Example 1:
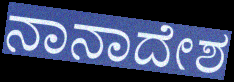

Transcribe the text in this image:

ನಾನಾದೇಶ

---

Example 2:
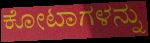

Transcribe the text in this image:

ಕೋಟಾಗಳನ್ನು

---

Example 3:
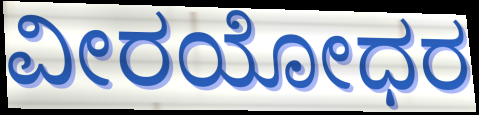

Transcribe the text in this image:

ವೀರಯೋಧರ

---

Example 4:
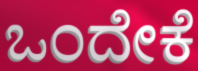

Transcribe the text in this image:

ಒಂದೇಕೆ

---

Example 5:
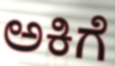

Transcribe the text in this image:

ಅಕಿಗೆ